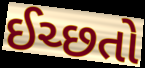
ઈચ્છતો